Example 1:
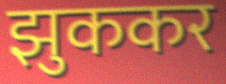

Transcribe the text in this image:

झुककर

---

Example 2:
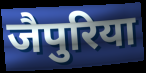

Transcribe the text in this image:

जैपुरिया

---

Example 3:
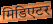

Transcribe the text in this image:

मिडिएटर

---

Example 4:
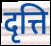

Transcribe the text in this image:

दृत्ति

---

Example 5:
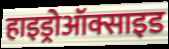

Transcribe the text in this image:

हाइड्रोऑक्साइड